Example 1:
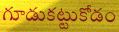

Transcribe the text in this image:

గూడుకట్టుకోడం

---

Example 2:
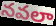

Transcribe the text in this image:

నవలా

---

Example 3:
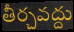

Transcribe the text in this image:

తీర్చవద్దు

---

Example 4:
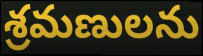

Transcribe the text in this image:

శ్రమణులను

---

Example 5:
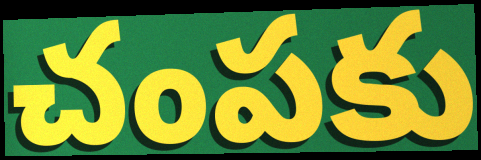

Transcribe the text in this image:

చంపకు